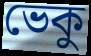
ভেকু